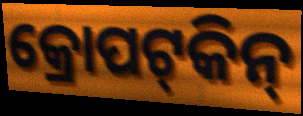
କ୍ରୋପଟ୍‍କିନ୍